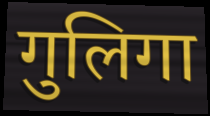
गुलिगा